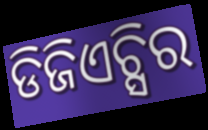
ଡିଜିଏଚ୍ସିର